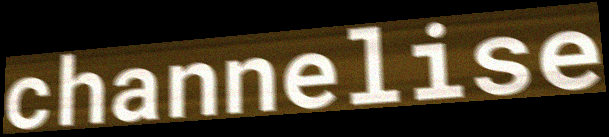
channelise